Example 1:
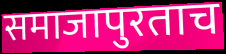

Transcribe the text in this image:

समाजापुरताच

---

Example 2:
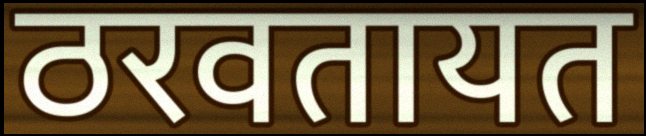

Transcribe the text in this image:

ठरवतायत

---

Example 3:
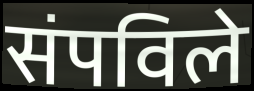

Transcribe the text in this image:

संपविले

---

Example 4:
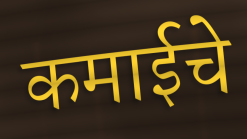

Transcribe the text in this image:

कमाईचे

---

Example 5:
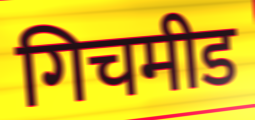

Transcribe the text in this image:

गिचमीड